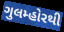
ગુલમ્હોરથી